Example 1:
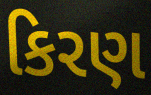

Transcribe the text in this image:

કિરણ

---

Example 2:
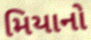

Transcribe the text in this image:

મિયાનો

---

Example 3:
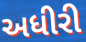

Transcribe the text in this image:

અધીરી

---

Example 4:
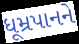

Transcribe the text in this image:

ધૂમ્રપાનને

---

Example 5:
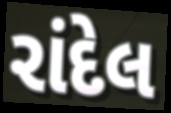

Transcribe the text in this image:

રાંદેલ